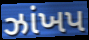
ઝાંખપ